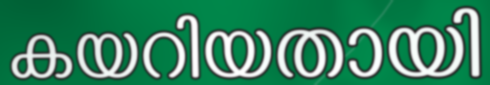
കയറിയതായി